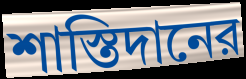
শাস্তিদানের